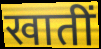
खातीं